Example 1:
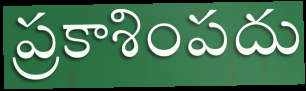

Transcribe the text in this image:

ప్రకాశింపదు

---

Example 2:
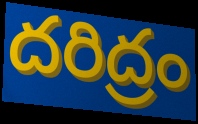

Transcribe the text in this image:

దరిద్రం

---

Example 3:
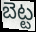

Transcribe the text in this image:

బెట్ట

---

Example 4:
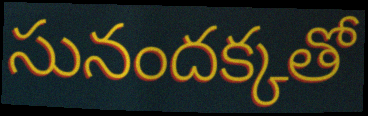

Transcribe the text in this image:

సునందక్కతో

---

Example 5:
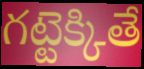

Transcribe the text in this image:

గట్టెక్కితే